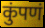
कुंपणं